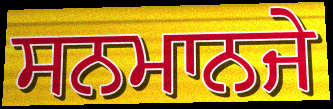
ਸਨਮਾਨਜੇ